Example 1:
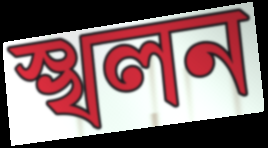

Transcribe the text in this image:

স্খলন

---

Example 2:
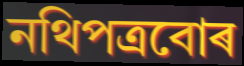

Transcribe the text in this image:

নথিপত্ৰবোৰ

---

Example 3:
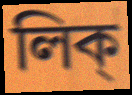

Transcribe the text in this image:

লিক্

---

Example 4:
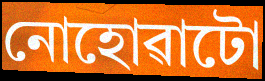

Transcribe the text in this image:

নোহোৱাটো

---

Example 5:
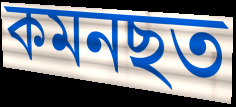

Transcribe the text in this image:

কমনছত